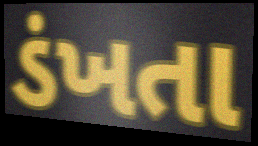
ડંખતા